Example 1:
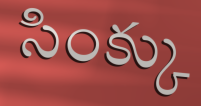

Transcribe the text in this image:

సింక్కు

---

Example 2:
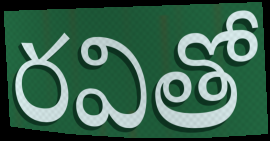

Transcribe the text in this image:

రవితో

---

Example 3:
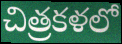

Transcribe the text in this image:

చిత్రకళలో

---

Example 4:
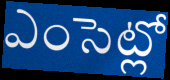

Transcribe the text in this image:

ఎంసెట్లో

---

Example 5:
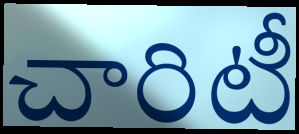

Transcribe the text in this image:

చారిటీ